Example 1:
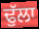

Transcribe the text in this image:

ਢੁੱਲਾ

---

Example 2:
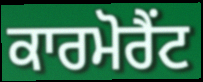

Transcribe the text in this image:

ਕਾਰਮੋਰੈਂਟ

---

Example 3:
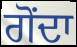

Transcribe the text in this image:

ਗੋਂਦਾ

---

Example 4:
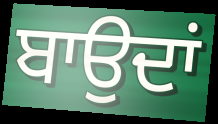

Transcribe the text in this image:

ਬਾਉਦਾਂ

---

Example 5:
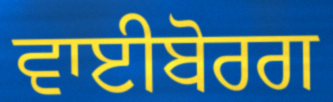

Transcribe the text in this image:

ਵਾਈਬੋਰਗ